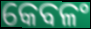
କେବଳଂ